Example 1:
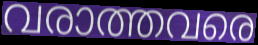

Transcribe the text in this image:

വരാത്തവരെ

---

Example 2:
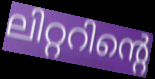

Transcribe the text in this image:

ലിറ്ററിന്റെ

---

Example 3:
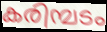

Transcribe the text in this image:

കരിമ്പടം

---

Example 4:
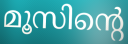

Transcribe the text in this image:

മൂസിന്റെ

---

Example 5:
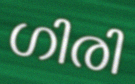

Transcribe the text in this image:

ഗിരി